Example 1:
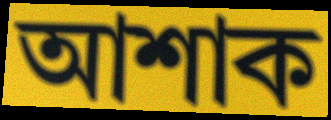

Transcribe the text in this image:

আশাক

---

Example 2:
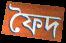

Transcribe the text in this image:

ফৈদ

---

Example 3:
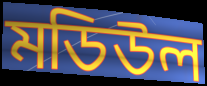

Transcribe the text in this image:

মডিউল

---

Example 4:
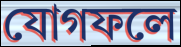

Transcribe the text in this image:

যোগফলে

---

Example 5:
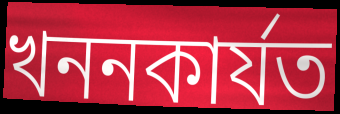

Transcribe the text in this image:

খননকাৰ্যত